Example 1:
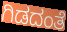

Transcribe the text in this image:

ಗಿಡದಂತೆ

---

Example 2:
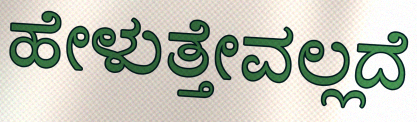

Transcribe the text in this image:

ಹೇಳುತ್ತೇವಲ್ಲದೆ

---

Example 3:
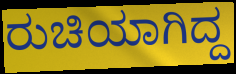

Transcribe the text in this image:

ರುಚಿಯಾಗಿದ್ದ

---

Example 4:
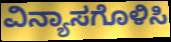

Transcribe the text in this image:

ವಿನ್ಯಾಸಗೊಳಿಸಿ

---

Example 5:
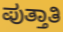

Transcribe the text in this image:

ಪುತ್ತಾತಿ